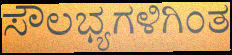
ಸೌಲಭ್ಯಗಳಿಗಿಂತ